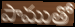
పాముతో